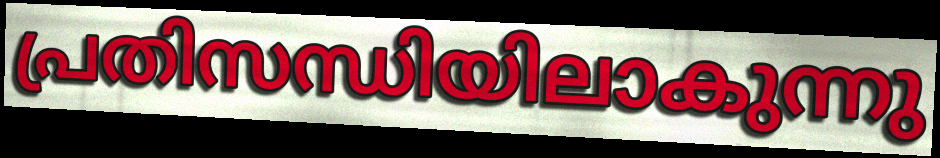
പ്രതിസന്ധിയിലാകുന്നു